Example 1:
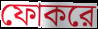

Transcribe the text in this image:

ফোকরে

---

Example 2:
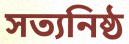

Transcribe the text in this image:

সত্যনিষ্ঠ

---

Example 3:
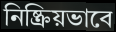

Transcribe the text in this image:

নিষ্ক্রিয়ভাবে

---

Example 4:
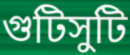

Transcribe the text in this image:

গুটিসুটি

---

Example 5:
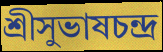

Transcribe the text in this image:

শ্রীসুভাষচন্দ্র